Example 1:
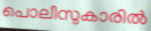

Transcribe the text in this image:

പൊലീസുകാരിൽ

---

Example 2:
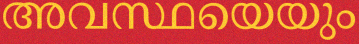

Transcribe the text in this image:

അവസ്ഥയെയും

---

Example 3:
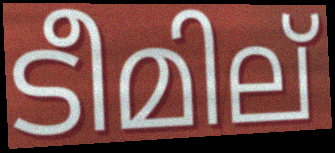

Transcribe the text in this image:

ടീമില്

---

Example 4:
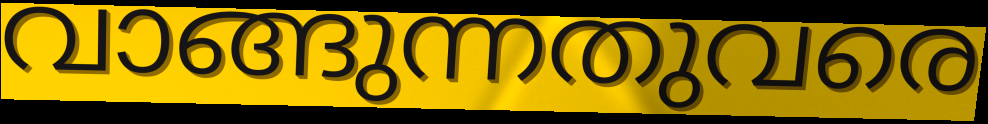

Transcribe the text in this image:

വാങ്ങുന്നതുവരെ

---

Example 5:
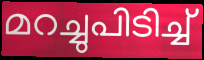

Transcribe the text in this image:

മറച്ചുപിടിച്ച്